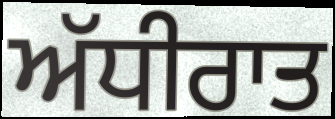
ਅੱਧੀਰਾਤ